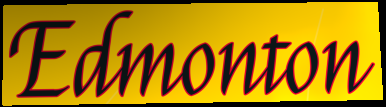
Edmonton